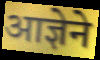
आज्ञेने